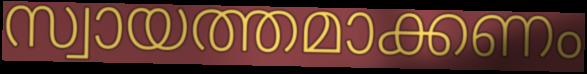
സ്വായത്തമാക്കണം